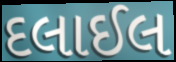
દલાઈલ